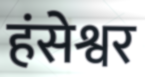
हंसेश्वर